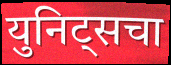
युनिट्सचा